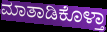
ಮಾತಾಡಿಕೊಳ್ತಾ